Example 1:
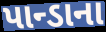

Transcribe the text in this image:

પાન્ડાના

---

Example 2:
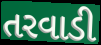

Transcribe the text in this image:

તરવાડી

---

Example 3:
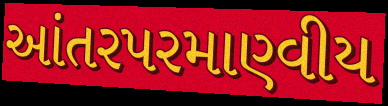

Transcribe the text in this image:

આંતરપરમાણ્વીય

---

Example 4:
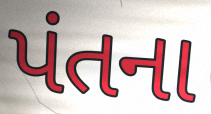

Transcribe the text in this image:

પંતના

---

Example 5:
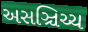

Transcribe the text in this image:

અસઞ્ચિચ્ચ